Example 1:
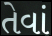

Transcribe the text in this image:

તેવાં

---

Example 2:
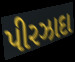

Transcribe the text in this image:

પીરઝાદા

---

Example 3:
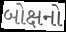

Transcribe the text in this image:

બોક્ષનો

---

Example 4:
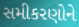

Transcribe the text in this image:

સમીકરણોને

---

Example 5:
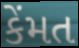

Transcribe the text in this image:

કેંમત